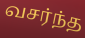
வசர்ந்த